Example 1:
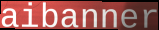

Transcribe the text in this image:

aibanner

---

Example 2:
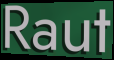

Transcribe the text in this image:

Raut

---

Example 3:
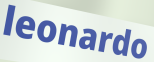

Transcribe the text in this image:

leonardo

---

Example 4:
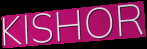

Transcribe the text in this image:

KISHOR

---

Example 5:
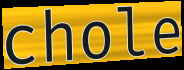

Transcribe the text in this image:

chole